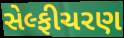
સેલ્ફીચરણ